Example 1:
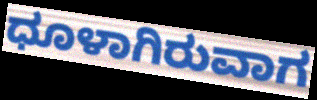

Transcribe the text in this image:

ಧೂಳಾಗಿರುವಾಗ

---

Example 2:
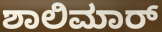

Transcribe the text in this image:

ಶಾಲಿಮಾರ್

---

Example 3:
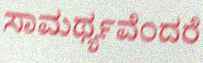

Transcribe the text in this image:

ಸಾಮರ್ಥ್ಯವೆಂದರೆ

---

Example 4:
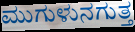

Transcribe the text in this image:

ಮುಗುಳುನಗುತ್ತ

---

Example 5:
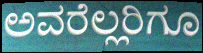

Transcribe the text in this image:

ಅವರೆಲ್ಲರಿಗೂ